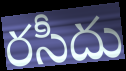
రసీదు